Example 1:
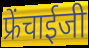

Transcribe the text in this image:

फ्रेंचाईजी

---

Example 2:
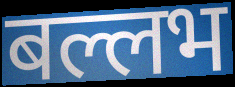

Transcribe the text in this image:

बल्लभ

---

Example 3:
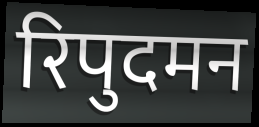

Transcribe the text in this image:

रिपुदमन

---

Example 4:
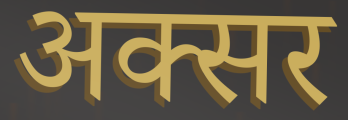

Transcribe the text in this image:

अक्सर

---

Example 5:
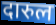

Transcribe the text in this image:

दारुल